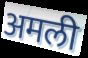
अमली